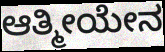
ಆತ್ಮೀಯೇನ